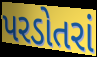
પરડોતરાં